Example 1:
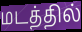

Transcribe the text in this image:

மடத்தில்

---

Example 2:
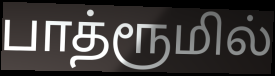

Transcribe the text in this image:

பாத்ரூமில்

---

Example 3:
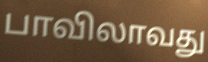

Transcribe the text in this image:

பாவிலாவது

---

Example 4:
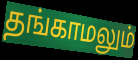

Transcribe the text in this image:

தங்காமலும்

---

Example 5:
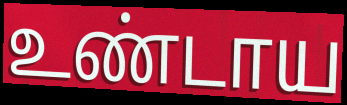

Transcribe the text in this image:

உண்டாய